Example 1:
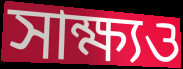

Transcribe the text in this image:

সাক্ষ্যও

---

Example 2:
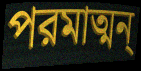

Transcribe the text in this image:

পরমাত্মন্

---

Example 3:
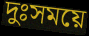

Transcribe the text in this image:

দুঃসময়ে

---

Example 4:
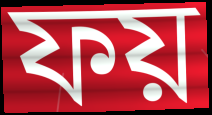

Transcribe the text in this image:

ফয়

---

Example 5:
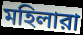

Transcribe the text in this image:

মহিলারা